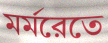
মর্মরেতে